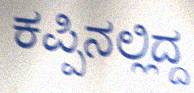
ಕಪ್ಪಿನಲ್ಲಿದ್ದ